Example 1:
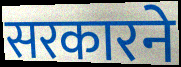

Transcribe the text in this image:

सरकारने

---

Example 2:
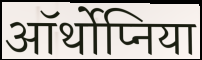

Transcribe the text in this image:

ऑर्थोप्निया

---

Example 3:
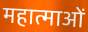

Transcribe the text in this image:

महात्माओं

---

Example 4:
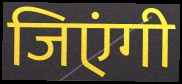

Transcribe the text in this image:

जिएंगी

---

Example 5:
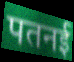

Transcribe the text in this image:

पतनई